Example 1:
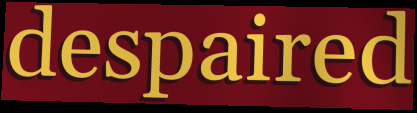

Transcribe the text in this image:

despaired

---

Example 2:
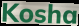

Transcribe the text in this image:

Kosha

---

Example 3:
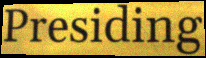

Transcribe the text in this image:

Presiding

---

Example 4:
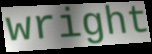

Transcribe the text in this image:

wright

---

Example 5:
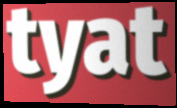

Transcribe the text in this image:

tyat